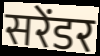
सरेंडर